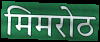
मिमरोठ